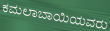
ಕಮಲಾಬಾಯಿಯವರು